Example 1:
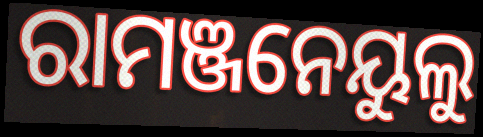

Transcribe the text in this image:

ରାମଞ୍ଜନେୟୁଲୁ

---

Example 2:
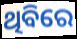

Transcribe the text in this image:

ଥିବିରେ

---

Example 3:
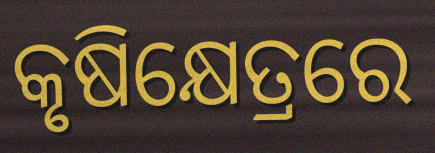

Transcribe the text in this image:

କୃଷିକ୍ଷେତ୍ରରେ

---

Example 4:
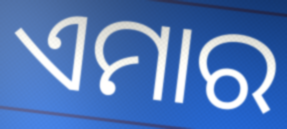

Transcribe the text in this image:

ଏମାର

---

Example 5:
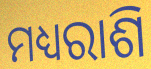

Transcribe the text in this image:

ମଧ୍ୟରାଶି